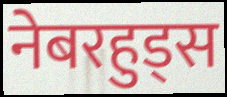
नेबरहुड्स